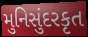
મુનિસુંદરકૃત